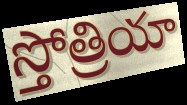
స్తోత్రియా